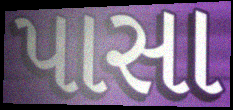
પાસા